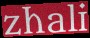
zhali